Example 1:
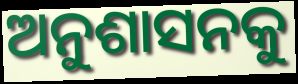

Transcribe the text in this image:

ଅନୁଶାସନକୁ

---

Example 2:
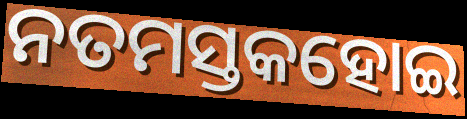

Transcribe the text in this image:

ନତମସ୍ତକହୋଇ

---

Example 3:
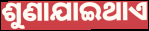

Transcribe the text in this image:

ଶୁଣାଯାଇଥାଏ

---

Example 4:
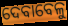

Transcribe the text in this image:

ଦେବାବେଳୁ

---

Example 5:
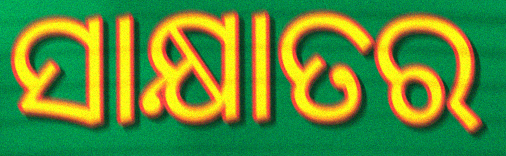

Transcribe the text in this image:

ସାକ୍ଷାତର